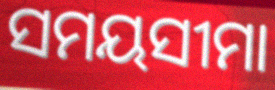
ସମୟସୀମା